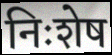
निःशेष